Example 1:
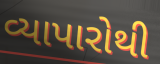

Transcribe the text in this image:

વ્યાપારોથી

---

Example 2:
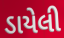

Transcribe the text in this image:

ડાયેલી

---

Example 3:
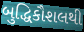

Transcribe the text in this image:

બુદ્ધિકૌશલથી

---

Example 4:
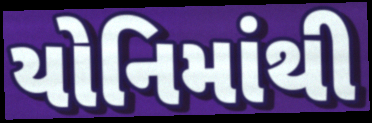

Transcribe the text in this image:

યોનિમાંથી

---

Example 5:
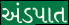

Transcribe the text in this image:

અંડપાત